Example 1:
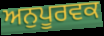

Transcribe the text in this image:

ਅਨੁਪੂਰਵਕ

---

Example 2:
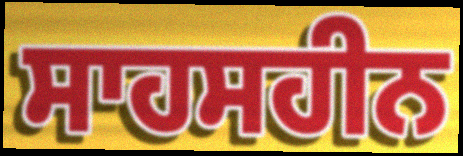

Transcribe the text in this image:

ਸਾਹਸਹੀਨ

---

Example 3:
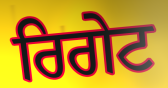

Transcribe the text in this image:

ਰਿਗੇਟ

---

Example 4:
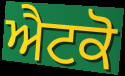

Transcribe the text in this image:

ਐਟਕੋ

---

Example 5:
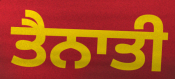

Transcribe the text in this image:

ਤੈਨਾਤੀ